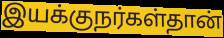
இயக்குநர்கள்தான்